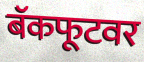
बॅकफूटवर